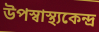
উপস্বাস্থ্যকেন্দ্র